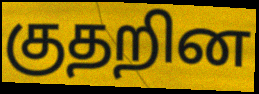
குதறின